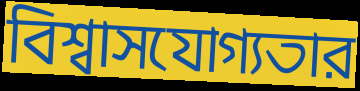
বিশ্বাসযোগ্যতার